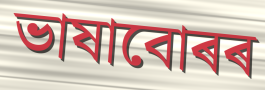
ভাষাবোৰৰ